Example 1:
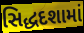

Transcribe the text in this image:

સિદ્ધદશામાં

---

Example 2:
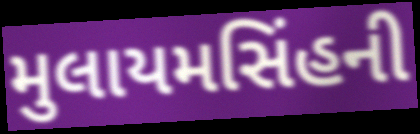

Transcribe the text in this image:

મુલાયમસિંહની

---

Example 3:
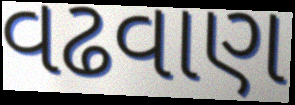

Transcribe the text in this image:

વઢવાણ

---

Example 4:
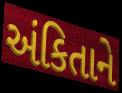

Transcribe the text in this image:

અંકિતાને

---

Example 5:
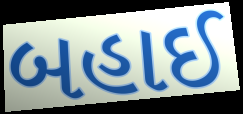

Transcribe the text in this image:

બહાઈ